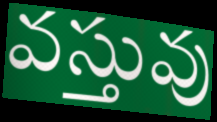
వస్తువు